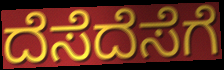
ದೆಸೆದೆಸೆಗೆ